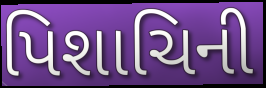
પિશાચિની